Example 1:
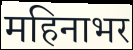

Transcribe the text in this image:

महिनाभर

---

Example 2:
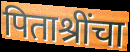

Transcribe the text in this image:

पिताश्रींचा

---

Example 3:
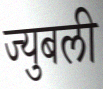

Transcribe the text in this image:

ज्युबली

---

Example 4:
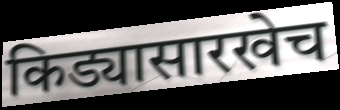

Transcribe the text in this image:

किड्यासारखेच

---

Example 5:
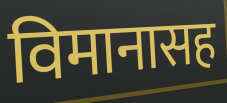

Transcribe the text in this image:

विमानासह